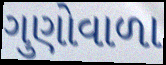
ગુણોવાળા